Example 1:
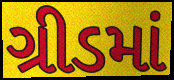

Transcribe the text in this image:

ગ્રીડમાં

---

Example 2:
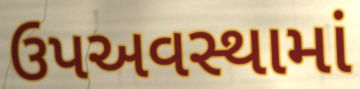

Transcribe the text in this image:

ઉપઅવસ્થામાં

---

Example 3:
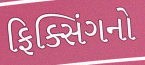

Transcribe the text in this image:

ફિક્સિંગનો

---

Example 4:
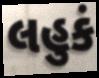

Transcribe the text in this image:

લહુકં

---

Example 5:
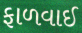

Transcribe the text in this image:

ફાળવાઈ